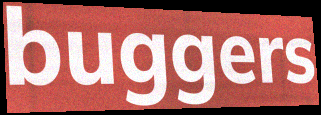
buggers